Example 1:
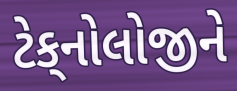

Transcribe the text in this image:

ટેક્‌નોલોજીને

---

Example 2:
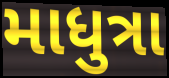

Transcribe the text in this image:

માધુત્રા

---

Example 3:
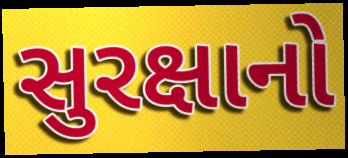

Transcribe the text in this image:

સુરક્ષાનો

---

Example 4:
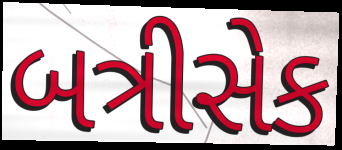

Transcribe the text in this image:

બત્રીસેક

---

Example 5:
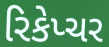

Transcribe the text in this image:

રિકેપ્ચર